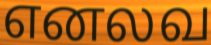
எனலவ